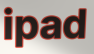
ipad